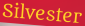
Silvester